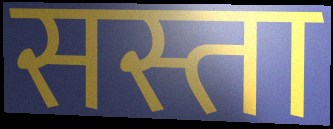
सस्‍ता